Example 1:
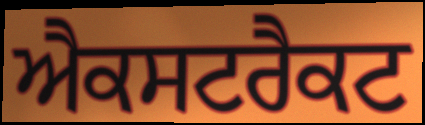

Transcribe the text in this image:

ਐਕਸਟਰੈਕਟ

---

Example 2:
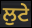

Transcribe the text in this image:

ਲੁਟੇ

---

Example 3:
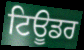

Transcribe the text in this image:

ਟਿਊਡਰ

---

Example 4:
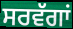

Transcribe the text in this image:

ਸਰਵੱਗਾਂ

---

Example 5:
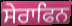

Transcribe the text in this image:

ਸੇਰਾਫਿਨ